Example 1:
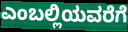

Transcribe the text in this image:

ಎಂಬಲ್ಲಿಯವರೆಗೆ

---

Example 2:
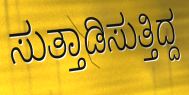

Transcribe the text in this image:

ಸುತ್ತಾಡಿಸುತ್ತಿದ್ದ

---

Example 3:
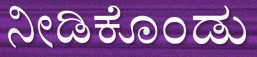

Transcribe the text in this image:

ನೀಡಿಕೊಂಡು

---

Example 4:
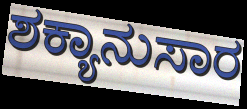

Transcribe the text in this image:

ಶಕ್ಯಾನುಸಾರ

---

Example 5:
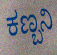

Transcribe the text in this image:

ಕಣ್ಬನಿ